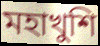
মহাখুশি